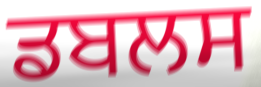
ਡਬਲਸ